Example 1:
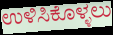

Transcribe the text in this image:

ಉಳಿಸಿಕೊಳ್ಳಲು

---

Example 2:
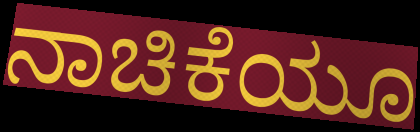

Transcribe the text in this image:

ನಾಚಿಕೆಯೂ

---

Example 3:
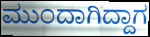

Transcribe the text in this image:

ಮುಂದಾಗಿದ್ದಾಗ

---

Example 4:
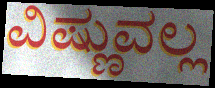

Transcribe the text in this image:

ವಿಷ್ಣುವಲ್ಲ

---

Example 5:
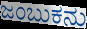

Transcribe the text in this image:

ಜಂಬುಕನು